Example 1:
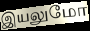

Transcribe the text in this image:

இயலுமோ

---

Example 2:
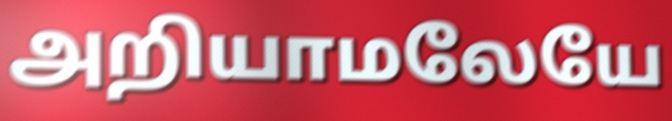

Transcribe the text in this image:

அறியாமலேயே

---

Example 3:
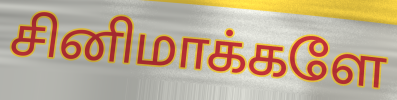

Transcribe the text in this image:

சினிமாக்களே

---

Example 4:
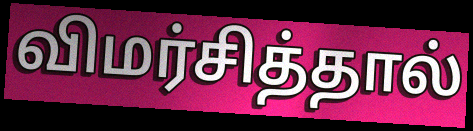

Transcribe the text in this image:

விமர்சித்தால்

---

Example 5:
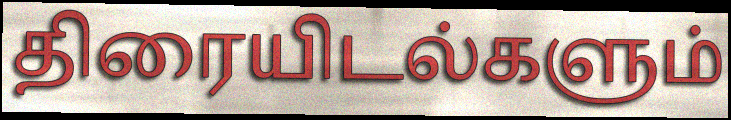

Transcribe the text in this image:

திரையிடல்களும்